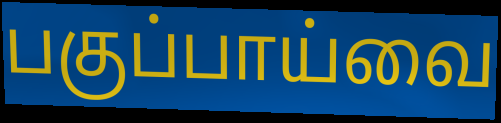
பகுப்பாய்வை